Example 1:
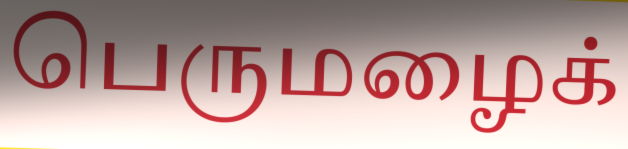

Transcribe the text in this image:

பெருமழைக்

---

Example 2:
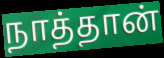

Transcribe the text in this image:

நாத்தான்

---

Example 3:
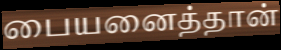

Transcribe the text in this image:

பையனைத்தான்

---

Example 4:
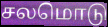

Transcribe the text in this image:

சலமொடு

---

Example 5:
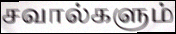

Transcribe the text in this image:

சவால்களும்